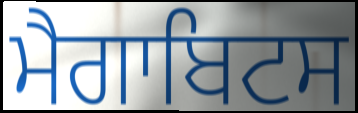
ਮੈਗਾਬਿਟਸ